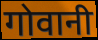
गोवानी